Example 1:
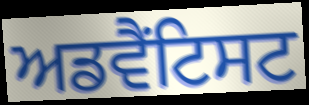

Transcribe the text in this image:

ਅਡਵੈਂਟਿਸਟ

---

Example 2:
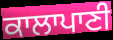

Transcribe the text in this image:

ਕਾਲਾਪਾਣੀ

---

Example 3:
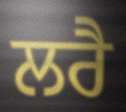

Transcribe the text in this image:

ਲਰੈ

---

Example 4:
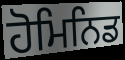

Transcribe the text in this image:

ਹੋਮਿਨਿਡ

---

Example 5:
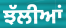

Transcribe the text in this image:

ਝੱਲੀਆਂ